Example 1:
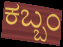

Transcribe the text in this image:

ಕಬ್ಬಂ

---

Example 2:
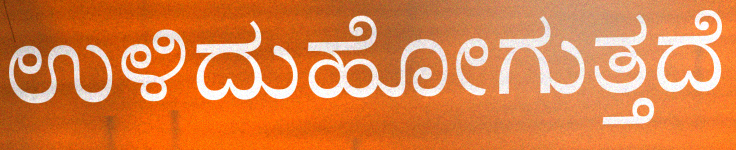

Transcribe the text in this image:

ಉಳಿದುಹೋಗುತ್ತದೆ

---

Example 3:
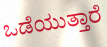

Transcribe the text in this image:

ಒಡೆಯುತ್ತಾರೆ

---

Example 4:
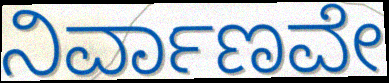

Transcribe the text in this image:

ನಿರ್ವಾಣವೇ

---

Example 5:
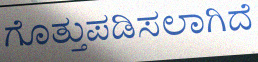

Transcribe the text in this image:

ಗೊತ್ತುಪಡಿಸಲಾಗಿದೆ